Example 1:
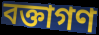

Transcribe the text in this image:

বক্তাগণ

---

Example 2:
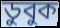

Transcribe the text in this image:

ডুবুক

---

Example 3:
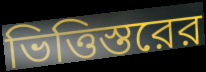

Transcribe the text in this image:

ভিত্তিস্তরের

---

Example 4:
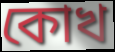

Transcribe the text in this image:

কোখ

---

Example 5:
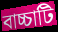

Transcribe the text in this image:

বাচ্চাটি